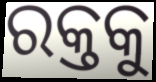
ରକ୍ତକୁ